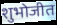
शुभोजीत